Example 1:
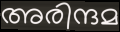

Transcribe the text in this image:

അരിന്ദമ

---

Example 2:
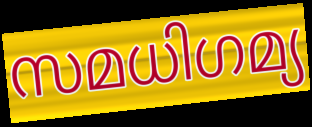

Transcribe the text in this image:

സമധിഗമ്യ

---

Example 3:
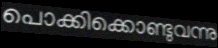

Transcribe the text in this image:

പൊക്കിക്കൊണ്ടുവന്നു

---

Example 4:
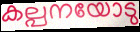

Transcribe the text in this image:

കല്പനയോടു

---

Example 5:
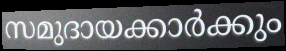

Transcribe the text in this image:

സമുദായക്കാർക്കും